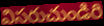
విసరుచుండిరి